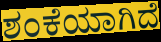
ಶಂಕೆಯಾಗಿದೆ